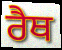
ਰੈਥ